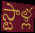
స్టాళ్ల